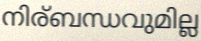
നിര്ബന്ധവുമില്ല